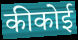
कीकोई